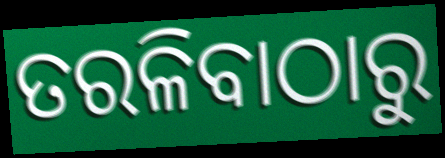
ତରଳିବାଠାରୁ